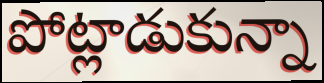
పోట్లాడుకున్నా